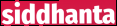
siddhanta